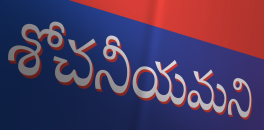
శోచనీయమని